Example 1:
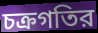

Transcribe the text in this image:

চক্রগতির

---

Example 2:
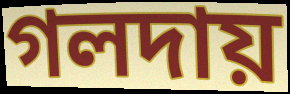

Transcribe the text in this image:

গলদায়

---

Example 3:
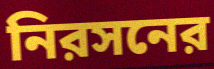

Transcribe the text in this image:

নিরসনের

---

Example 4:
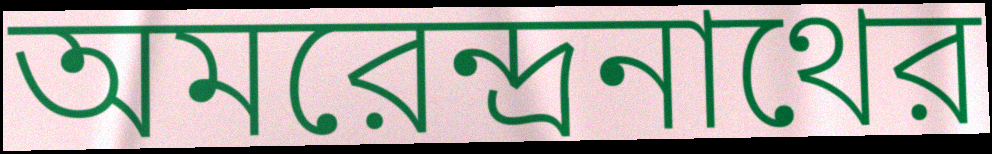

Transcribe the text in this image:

অমরেন্দ্রনাথের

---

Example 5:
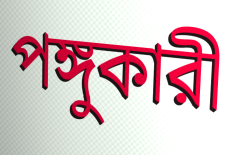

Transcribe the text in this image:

পঙ্গুকারী